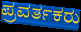
ಪ್ರವರ್ತಕರು